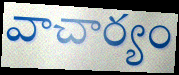
వాచార్యం